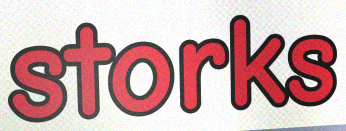
storks